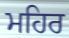
ਮਹਿਰ